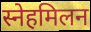
स्नेहमिलन